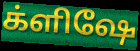
க்ளிஷே